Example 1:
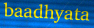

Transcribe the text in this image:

baadhyata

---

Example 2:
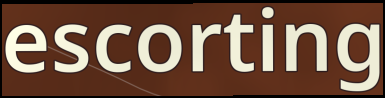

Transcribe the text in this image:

escorting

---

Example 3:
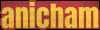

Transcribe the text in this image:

anicham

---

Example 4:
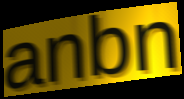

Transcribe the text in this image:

anbn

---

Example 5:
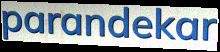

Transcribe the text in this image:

parandekar